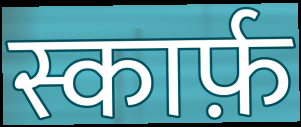
स्कार्फ़